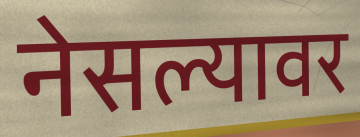
नेसल्यावर